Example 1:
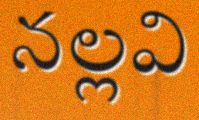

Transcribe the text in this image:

నల్లవి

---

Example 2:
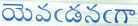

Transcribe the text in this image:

యెవఁడనఁగా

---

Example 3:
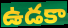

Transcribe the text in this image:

ఉడకా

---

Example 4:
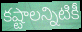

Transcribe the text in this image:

కష్టాలన్నిటికీ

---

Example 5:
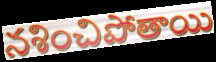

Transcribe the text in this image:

నశించిపోతాయి